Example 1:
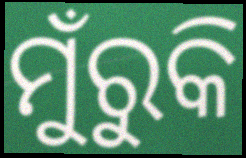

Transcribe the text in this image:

ମୁଁରୁକି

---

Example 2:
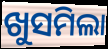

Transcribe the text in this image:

ଖୁସମିଲା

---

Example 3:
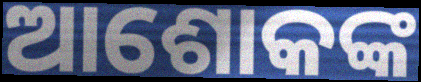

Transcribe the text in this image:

ଆଶୋକଙ୍କ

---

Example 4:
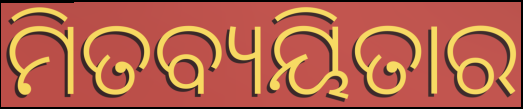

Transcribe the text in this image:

ମିତବ୍ୟୟିତାର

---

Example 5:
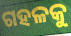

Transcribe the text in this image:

ଗହଳକୁ